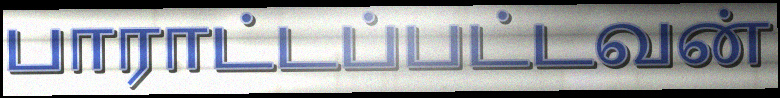
பாராட்டப்பட்டவன்